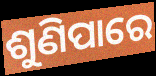
ଶୁଣିପାରେ